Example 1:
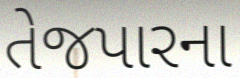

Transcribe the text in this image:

તેજપારના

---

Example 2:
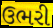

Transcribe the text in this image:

ઉભરી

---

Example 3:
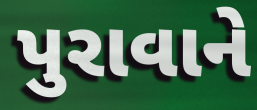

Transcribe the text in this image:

પુરાવાને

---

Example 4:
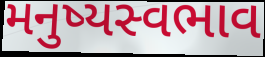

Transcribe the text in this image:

મનુષ્યસ્વભાવ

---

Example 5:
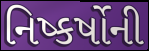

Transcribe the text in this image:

નિષ્કર્ષોની